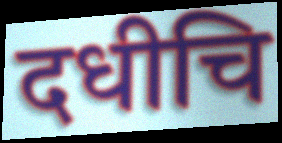
दधीचि